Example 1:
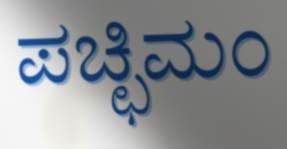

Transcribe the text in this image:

ಪಚ್ಛಿಮಂ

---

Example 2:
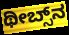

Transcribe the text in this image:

ಥೀಬ್ಸ್‌ನ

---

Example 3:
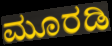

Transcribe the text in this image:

ಮೂರಡಿ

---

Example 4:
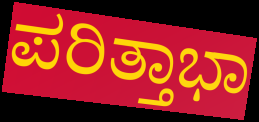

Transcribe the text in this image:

ಪರಿತ್ತಾಭಾ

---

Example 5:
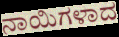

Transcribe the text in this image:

ನಾಯಿಗಳಾದ